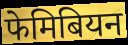
फेमिबियन